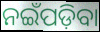
ନଇଁପଡ଼ିବା